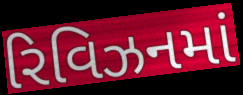
રિવિઝનમાં